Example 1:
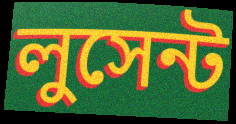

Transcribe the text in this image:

লুসেন্ট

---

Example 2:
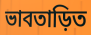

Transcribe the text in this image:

ভাবতাড়িত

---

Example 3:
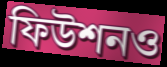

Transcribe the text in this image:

ফিউশনও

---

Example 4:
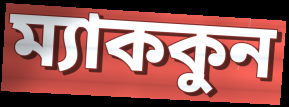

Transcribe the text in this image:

ম্যাককুন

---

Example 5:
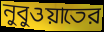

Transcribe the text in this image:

নুবুওয়াতের